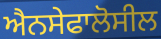
ਐਨਸੇਫਾਲੋਸੀਲ